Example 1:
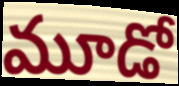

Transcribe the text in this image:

మూడో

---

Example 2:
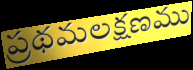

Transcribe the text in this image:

ప్రథమలక్షణము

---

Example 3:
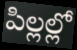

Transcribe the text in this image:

పిల్లల్లో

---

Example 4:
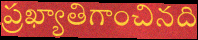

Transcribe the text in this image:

ప్రఖ్యాతిగాంచినది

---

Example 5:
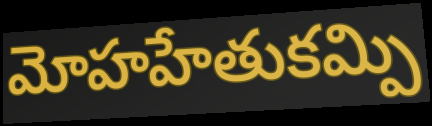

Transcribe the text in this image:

మోహహేతుకమ్పి